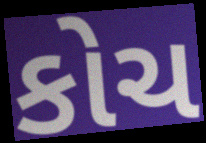
કોચ